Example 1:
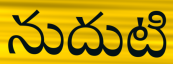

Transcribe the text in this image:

నుదుటి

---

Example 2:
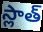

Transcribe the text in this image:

స్లాత్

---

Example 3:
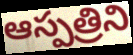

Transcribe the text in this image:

ఆస్పత్రిని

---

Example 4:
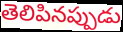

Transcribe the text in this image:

తెలిపినప్పుడు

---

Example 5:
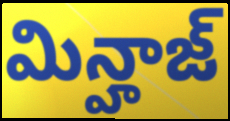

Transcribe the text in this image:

మిన్హాజ్